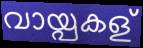
വായ്പകള്